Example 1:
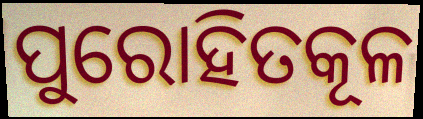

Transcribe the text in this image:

ପୁରୋହିତକୂଳ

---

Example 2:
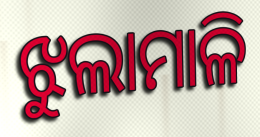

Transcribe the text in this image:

ଝୁଲାମାଳି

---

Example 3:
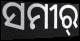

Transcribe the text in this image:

ସମୀର୍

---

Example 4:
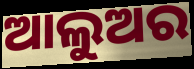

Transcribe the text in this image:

ଆଲୁଅର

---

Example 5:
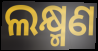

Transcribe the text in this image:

ଲକ୍ଷ୍ମଣ